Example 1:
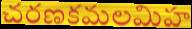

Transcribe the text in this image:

చరణకమలమిహ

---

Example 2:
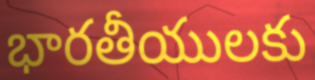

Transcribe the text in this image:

భారతీయులకు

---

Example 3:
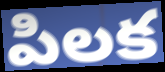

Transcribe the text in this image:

పిలక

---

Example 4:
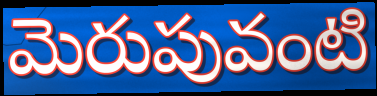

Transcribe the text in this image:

మెరుపువంటి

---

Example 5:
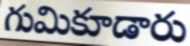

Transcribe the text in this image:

గుమికూడారు